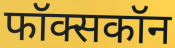
फॉक्सकॉन